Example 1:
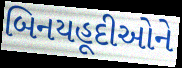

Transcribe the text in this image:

બિનયહૂદીઓને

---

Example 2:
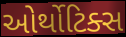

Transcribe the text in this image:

ઓર્થોટિક્સ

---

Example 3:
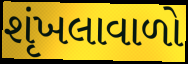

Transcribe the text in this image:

શૃંખલાવાળો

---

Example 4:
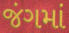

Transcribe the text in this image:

જંગમાં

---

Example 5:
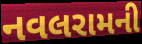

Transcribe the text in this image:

નવલરામની